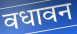
वधावन